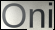
Oni